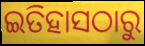
ଇତିହାସଠାରୁ